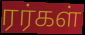
ரர்கள்